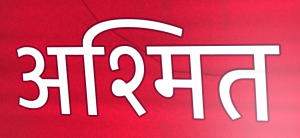
अश्मित